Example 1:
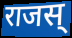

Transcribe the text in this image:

राजस्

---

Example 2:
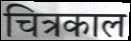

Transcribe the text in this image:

चित्रकाल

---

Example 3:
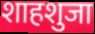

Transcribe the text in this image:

शाहशुजा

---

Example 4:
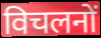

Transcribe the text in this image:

विचलनों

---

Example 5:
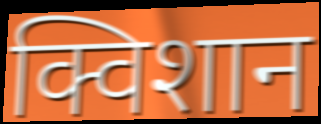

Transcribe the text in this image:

क्विशान